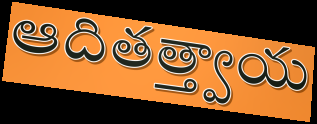
ఆదితత్త్వాయ